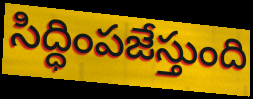
సిద్ధింపజేస్తుంది